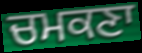
ਚਮਕਣਾ